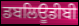
ਡਬਲਿਊਡੀਬੀ